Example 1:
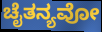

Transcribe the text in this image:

ಚೈತನ್ಯವೋ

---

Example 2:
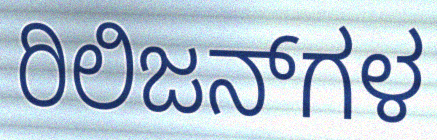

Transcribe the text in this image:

ರಿಲಿಜನ್‌ಗಳ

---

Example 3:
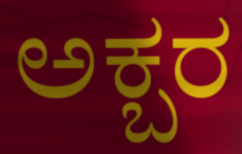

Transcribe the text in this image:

ಅಕ್ಬರ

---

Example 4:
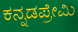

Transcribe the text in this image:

ಕನ್ನಡಪ್ರೇಮಿ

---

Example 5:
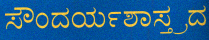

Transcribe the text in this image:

ಸೌಂದರ್ಯಶಾಸ್ತ್ರದ